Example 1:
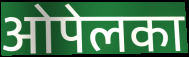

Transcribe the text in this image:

ओपेलका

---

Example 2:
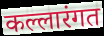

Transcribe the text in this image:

कल्लारंगत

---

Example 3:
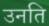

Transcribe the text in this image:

उनति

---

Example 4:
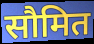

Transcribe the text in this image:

सौमित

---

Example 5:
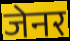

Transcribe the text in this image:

जेनर